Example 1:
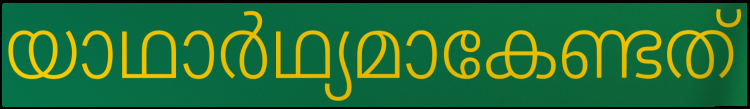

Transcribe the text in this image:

യാഥാർഥ്യമാകേണ്ടത്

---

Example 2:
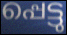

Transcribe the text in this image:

പ്പെട്ടു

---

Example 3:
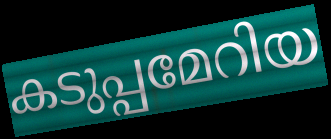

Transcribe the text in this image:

കടുപ്പമേറിയ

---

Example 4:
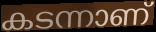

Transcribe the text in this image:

കടന്നാണ്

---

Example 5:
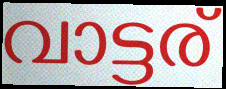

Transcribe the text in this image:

വാട്ടര്